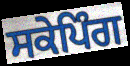
ਸਕੇਪਿੰਗ